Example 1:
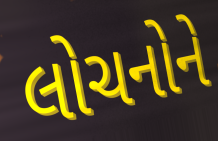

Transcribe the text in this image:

લોચનોને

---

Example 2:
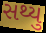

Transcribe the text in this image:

સથ્યુ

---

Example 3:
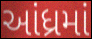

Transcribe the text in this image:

આંધ્રમાં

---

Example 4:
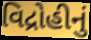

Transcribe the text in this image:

વિદ્રોહીનું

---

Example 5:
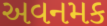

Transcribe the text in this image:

અવનમક